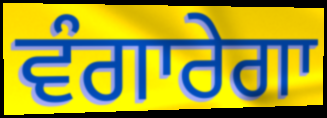
ਵੰਗਾਰੇਗਾ